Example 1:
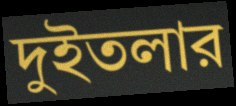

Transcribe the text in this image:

দুইতলার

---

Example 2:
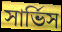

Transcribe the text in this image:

সার্ভিস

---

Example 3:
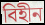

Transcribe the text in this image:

বিহীন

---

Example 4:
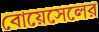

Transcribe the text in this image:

বোয়েসেলের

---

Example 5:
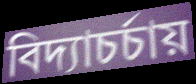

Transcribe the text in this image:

বিদ্যাচর্চায়